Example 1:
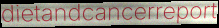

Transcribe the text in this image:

dietandcancerreport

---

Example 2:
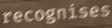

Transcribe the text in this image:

recognises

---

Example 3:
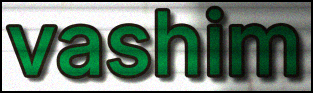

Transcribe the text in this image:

vashim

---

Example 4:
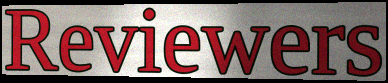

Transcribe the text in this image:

Reviewers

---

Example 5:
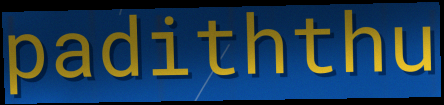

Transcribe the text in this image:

padiththu